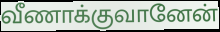
வீணாக்குவானேன்